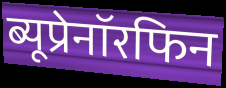
ब्यूप्रेनॉरफिन